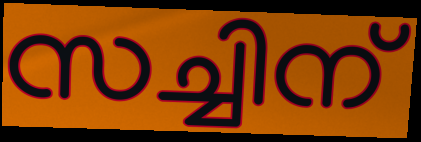
സച്ചിന്